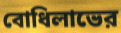
বোধিলাভের